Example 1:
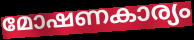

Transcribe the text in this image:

മോഷണകാര്യം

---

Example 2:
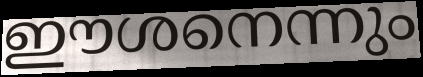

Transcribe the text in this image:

ഈശനെന്നും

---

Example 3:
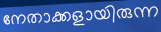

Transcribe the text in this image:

നേതാക്കളായിരുന്ന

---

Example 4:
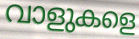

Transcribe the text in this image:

വാളുകളെ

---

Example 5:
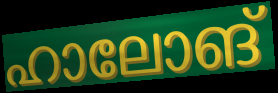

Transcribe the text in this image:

ഹാലോങ്